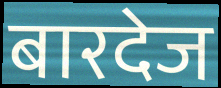
बारदेज